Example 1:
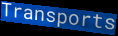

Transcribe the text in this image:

Transports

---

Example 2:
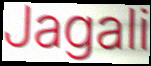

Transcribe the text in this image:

Jagali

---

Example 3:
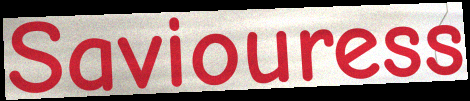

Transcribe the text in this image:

Saviouress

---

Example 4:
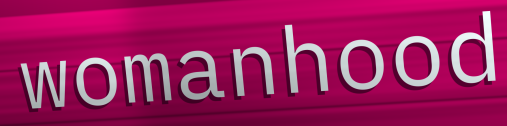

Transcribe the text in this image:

womanhood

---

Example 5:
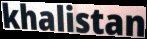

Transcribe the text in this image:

khalistan